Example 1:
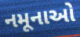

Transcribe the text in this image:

નમૂનાઓ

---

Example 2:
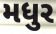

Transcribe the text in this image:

મધુર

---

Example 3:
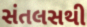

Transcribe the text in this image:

સંતલસથી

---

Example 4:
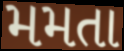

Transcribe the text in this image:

મમતા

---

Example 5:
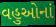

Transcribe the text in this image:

વહુઓનાં